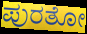
ಪುರತೋ